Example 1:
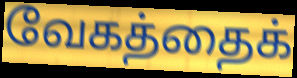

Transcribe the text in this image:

வேகத்தைக்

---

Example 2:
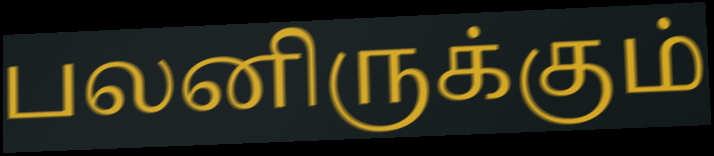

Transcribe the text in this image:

பலனிருக்கும்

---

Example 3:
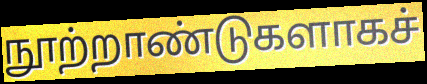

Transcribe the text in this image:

நூற்றாண்டுகளாகச்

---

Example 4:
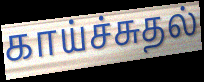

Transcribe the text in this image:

காய்ச்சுதல்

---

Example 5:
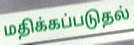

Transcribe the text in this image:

மதிக்கப்படுதல்